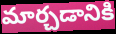
మార్చడానికి